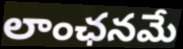
లాంఛనమే